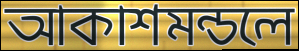
আকাশমন্ডলে